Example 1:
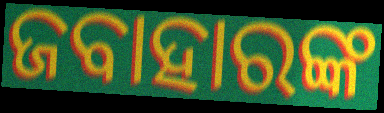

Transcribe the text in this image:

ଜବାହାରଙ୍କ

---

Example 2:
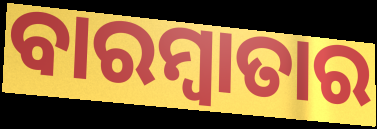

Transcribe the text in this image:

ବାରମ୍ବାତାର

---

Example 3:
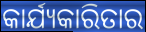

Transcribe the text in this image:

କାର୍ଯ୍ୟକାରିତାର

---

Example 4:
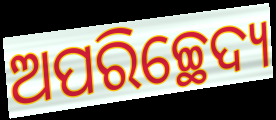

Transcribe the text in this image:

ଅପରିଚ୍ଛେଦ୍ୟ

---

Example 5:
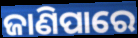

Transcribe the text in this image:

ଜାଣିପାରେ